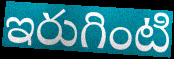
ఇరుగింటి